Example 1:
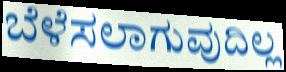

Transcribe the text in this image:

ಬೆಳೆಸಲಾಗುವುದಿಲ್ಲ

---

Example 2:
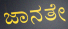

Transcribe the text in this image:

ಜಾನತೇ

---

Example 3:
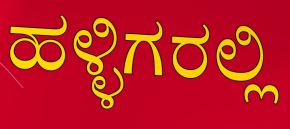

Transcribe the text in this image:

ಹಳ್ಳಿಗರಲ್ಲಿ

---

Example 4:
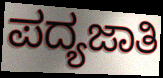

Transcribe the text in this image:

ಪದ್ಯಜಾತಿ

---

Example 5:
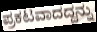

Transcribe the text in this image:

ಪ್ರಕಟವಾದದ್ದನ್ನು